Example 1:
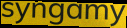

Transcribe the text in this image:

syngamy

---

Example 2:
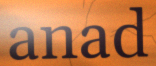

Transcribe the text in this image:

anad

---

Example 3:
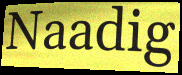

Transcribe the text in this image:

Naadig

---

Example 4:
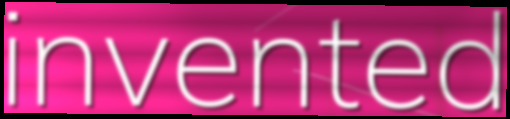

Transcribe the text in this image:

invented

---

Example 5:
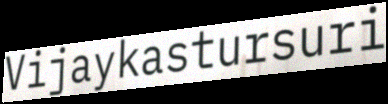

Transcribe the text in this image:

Vijaykastursuri